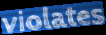
violates